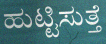
ಹುಟ್ಟಿಸುತ್ತೆ